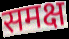
समक्ष